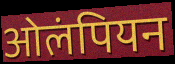
ओलंपियन